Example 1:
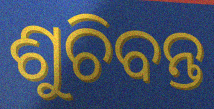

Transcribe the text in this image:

ଶୁଚିବନ୍ତ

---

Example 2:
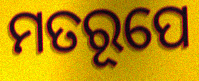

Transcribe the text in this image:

ମତରୂପେ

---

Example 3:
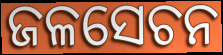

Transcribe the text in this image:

ଜଳସେଚନ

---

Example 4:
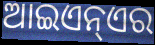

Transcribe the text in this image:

ଆଇଏନ୍ଏର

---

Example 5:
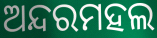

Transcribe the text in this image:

ଅନ୍ଦରମହଲ